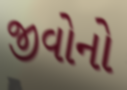
જીવોનો